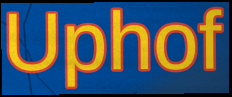
Uphof